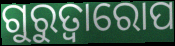
ଗୁରୁତ୍ୱାରୋପ